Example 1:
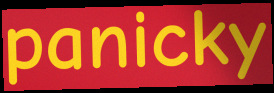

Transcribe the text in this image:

panicky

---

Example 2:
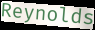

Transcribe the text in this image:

Reynolds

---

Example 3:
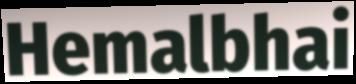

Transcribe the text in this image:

Hemalbhai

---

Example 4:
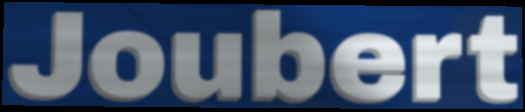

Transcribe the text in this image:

Joubert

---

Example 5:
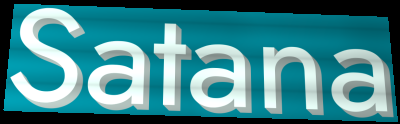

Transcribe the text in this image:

Satana